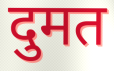
दुमत